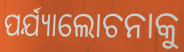
ପର୍ଯ୍ୟାଲୋଚନାକୁ